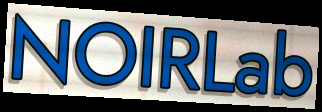
NOIRLab